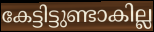
കേട്ടിട്ടുണ്ടാകില്ല